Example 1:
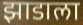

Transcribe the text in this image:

झाडाला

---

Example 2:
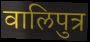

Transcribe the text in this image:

वालिपुत्र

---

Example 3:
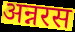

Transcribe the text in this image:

अन्नरस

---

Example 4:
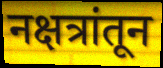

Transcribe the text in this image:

नक्षत्रांतून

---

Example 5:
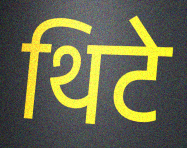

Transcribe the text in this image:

थिटे